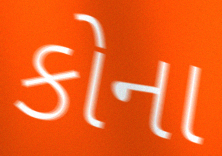
કોના